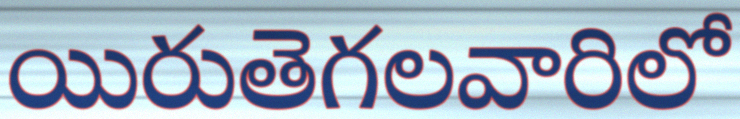
యిరుతెగలవారిలో